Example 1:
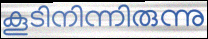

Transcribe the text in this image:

കൂടിനിന്നിരുന്നു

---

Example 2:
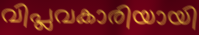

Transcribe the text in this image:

വിപ്ലവകാരിയായി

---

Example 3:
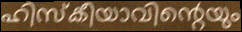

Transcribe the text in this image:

ഹിസ്കീയാവിന്റെയും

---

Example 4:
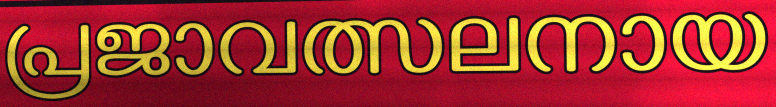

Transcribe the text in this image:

പ്രജാവത്സലനായ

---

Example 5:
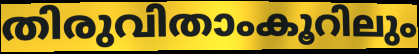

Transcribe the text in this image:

തിരുവിതാംകൂറിലും